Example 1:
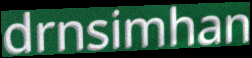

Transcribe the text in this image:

drnsimhan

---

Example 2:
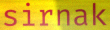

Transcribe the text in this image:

sirnak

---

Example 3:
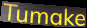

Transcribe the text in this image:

Tumake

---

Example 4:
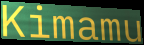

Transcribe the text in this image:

Kimamu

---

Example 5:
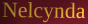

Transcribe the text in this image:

Nelcynda